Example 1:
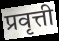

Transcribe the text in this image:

प्रवृत्ती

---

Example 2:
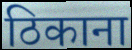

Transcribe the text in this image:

ठिकाना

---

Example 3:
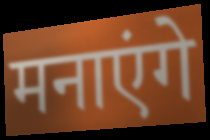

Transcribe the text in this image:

मनाएंगे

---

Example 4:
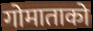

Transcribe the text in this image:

गोमाताको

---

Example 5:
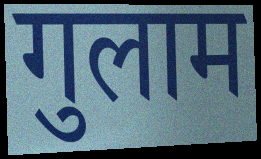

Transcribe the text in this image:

गुलाम